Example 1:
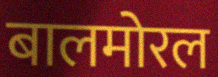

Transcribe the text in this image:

बालमोरल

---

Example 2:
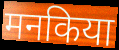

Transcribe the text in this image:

मनकिया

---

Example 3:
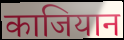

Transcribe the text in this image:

काजियान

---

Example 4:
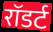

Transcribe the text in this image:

रॉडर्ट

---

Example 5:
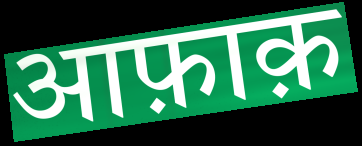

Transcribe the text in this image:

आफ़ाक़